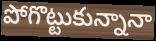
పోగొట్టుకున్నానా